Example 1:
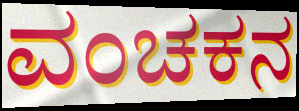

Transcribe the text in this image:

ವಂಚಕನ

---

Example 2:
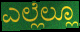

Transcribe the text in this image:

ಎಲ್ಲೆಲ್ಲೂ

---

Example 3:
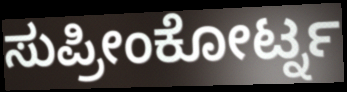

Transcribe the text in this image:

ಸುಪ್ರೀಂಕೋರ್ಟ್ನ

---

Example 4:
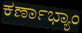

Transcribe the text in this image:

ಕರ್ಣಾಭ್ಯಾಂ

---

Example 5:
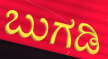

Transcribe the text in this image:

ಬುಗಡಿ